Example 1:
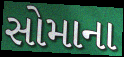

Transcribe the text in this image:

સોમાના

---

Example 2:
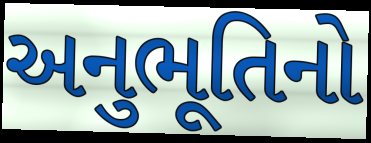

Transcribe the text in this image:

અનુભૂતિનો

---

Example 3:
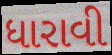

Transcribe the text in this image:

ધારાવી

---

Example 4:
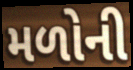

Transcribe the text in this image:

મળોની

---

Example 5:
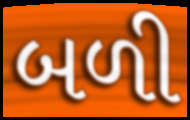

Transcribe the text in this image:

બળી